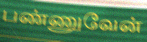
பண்ணுவேன்